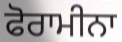
ਫੋਰਾਮੀਨਾ